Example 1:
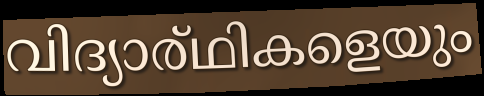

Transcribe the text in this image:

വിദ്യാര്ഥികളെയും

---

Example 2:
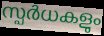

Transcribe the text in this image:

സ്പർധകളും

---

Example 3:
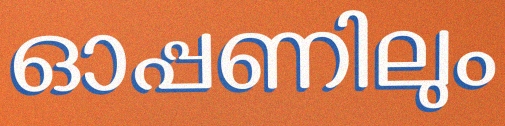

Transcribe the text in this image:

ഓപ്പണിലും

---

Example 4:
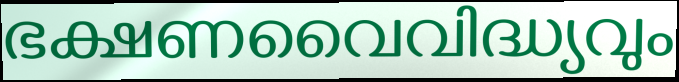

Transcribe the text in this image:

ഭക്ഷണവൈവിദ്ധ്യവും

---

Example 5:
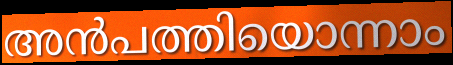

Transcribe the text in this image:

അൻപത്തിയൊന്നാം